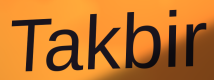
Takbir